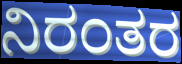
ನಿರಂತರ